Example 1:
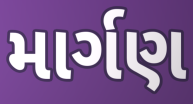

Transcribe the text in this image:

માર્ગણ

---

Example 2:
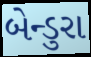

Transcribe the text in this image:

બેન્ડુરા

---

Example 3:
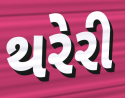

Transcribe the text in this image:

થરેરી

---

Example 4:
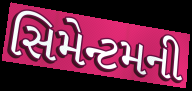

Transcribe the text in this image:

સિમેન્ટમની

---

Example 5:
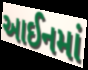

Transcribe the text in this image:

આઈનમાં